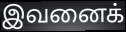
இவனைக்